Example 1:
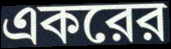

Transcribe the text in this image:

একরের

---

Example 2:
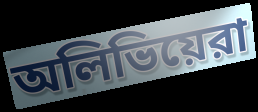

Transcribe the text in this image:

অলিভিয়েরা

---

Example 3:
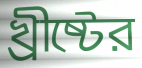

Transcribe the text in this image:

খ্রীষ্টের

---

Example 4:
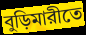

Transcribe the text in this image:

বুড়িমারীতে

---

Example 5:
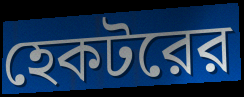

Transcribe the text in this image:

হেকটরের